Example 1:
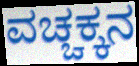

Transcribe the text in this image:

ವಚ್ಚಕ್ಕನ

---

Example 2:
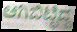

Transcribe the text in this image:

ಆಗಿಬಿಟ್ಟಿದ್ದ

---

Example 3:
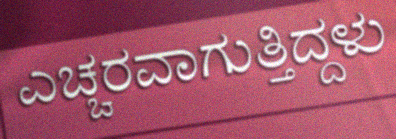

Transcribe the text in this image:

ಎಚ್ಚರವಾಗುತ್ತಿದ್ದಳು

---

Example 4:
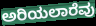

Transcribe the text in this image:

ಅರಿಯಲಾರೆವು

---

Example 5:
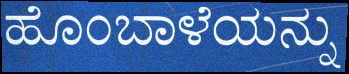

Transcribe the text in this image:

ಹೊಂಬಾಳೆಯನ್ನು